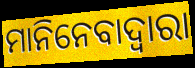
ମାନିନେବାଦ୍ୱାରା